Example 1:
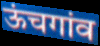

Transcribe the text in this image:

ऊंचगांव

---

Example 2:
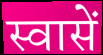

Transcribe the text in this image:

स्वासें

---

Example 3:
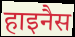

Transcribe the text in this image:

हाइनैस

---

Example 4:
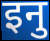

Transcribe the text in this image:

इनु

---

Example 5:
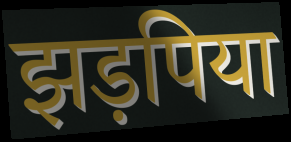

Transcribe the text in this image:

झड़पिया